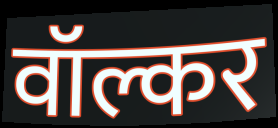
वॉल्कर